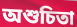
অশুচিতা